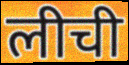
लीची